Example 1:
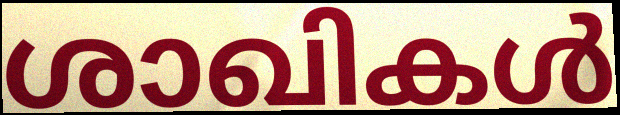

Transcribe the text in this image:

ശാഖികൾ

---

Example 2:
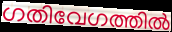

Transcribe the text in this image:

ഗതിവേഗത്തിൽ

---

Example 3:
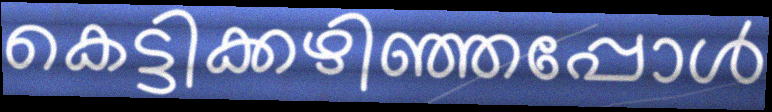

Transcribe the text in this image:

കെട്ടിക്കഴിഞ്ഞപ്പോൾ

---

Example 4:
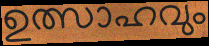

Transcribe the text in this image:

ഉത്സാഹവും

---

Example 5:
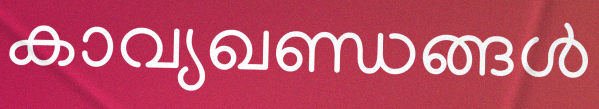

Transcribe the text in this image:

കാവ്യഖണ്ഡങ്ങൾ